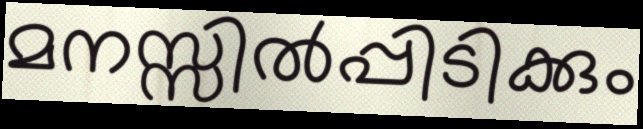
മനസ്സിൽപ്പിടിക്കും